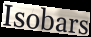
Isobars